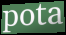
pota